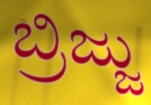
ಬ್ರಿಜ್ಜು